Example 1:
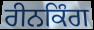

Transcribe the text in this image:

ਰੀਨਕਿੰਗ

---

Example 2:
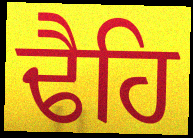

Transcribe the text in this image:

ਢੈਹਿ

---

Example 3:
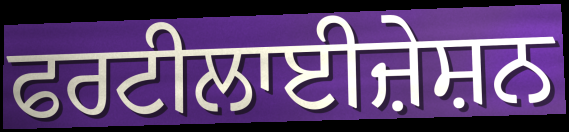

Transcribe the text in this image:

ਫਰਟੀਲਾਈਜ਼ੇਸ਼ਨ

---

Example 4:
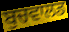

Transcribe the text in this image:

ਬੁਚਵਾਲਡ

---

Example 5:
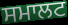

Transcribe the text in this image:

ਸਮਾਲਟ